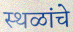
स्थळांचे